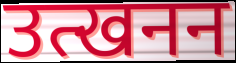
उत्खनन